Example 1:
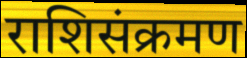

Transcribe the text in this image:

राशिसंक्रमण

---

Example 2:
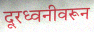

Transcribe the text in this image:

दूरध्वनीवरून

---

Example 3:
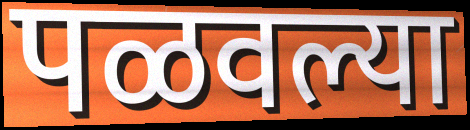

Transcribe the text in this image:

पळवल्या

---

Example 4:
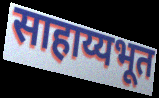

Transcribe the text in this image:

साहाय्यभूत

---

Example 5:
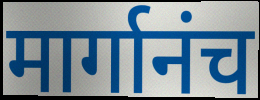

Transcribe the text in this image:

मार्गानंच